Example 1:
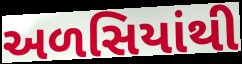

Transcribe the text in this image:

અળસિયાંથી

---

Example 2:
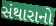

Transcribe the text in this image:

સંથારાનો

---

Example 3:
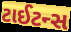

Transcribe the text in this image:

ટાઈટન્સ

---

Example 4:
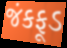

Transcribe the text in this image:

જંકફૂડ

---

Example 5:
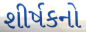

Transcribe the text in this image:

શીર્ષકનો